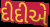
દીદીએ